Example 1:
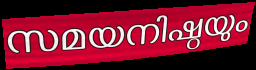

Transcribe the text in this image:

സമയനിഷ്ഠയും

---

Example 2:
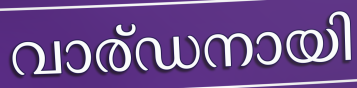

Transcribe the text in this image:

വാര്ഡനായി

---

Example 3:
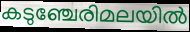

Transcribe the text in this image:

കടുഞ്ചേരിമലയിൽ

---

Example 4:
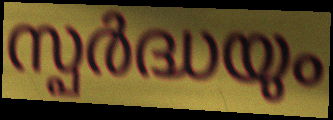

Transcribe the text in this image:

സ്പർദ്ധയും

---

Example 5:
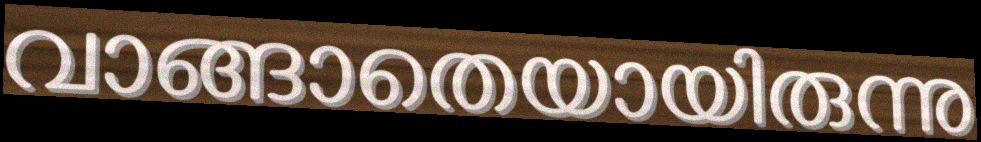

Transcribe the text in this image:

വാങ്ങാതെയായിരുന്നു